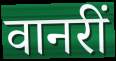
वानरीं